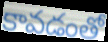
కావడంతో